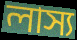
লাস্য